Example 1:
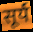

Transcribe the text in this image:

सूर्य॑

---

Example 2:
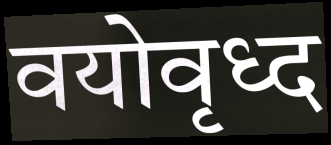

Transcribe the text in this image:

वयोवृध्द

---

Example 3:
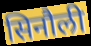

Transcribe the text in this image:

सिनौली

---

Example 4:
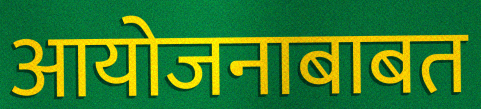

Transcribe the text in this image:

आयोजनाबाबत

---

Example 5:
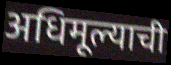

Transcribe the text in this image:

अधिमूल्याची